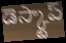
డెస్క్టాప్